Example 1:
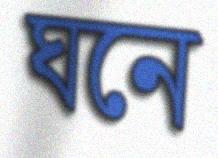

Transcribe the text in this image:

ঘনে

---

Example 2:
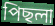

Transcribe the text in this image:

পিছলা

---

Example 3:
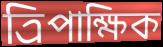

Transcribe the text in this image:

ত্ৰিপাক্ষিক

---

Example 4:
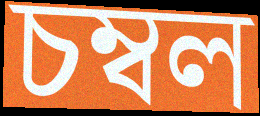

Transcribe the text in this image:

চম্বল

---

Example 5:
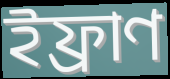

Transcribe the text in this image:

ইফ্ৰাণ